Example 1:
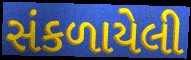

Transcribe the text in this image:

સંકળાયેલી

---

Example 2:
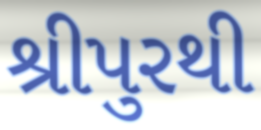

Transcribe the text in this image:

શ્રીપુરથી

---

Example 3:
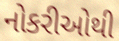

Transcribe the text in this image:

નોકરીઓથી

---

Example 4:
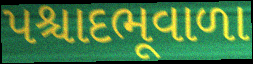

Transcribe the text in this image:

પશ્ચાદભૂવાળા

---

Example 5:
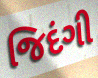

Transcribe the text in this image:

જિદંગી